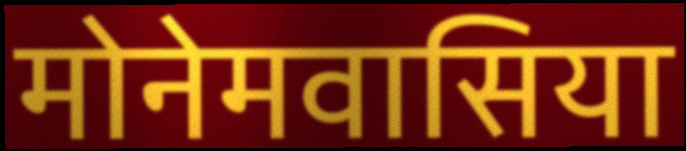
मोनेमवासिया